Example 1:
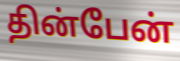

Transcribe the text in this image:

தின்பேன்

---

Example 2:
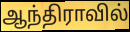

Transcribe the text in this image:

ஆந்திராவில்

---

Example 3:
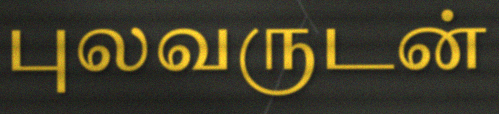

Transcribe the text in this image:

புலவருடன்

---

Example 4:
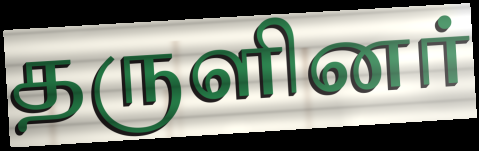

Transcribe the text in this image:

தருளினர்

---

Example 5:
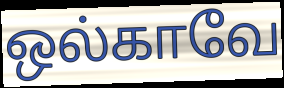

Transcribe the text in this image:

ஒல்காவே